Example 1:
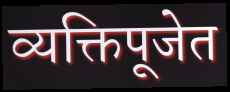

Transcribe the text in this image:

व्यक्तिपूजेत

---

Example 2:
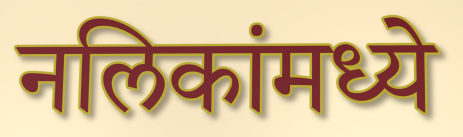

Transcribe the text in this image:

नलिकांमध्ये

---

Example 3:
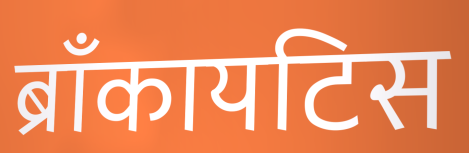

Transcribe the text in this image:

ब्राँकायटिस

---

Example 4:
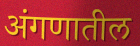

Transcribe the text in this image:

अंगणातील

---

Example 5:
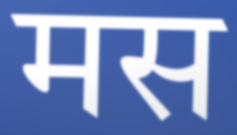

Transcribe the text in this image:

मस